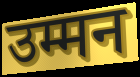
उम्मन